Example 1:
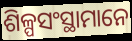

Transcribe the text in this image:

ଶିଳ୍ପସଂସ୍ଥାମାନେ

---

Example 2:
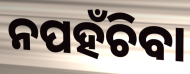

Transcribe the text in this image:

ନପହଁଚିବା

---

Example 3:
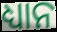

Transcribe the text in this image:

ଧ୍ୟାନ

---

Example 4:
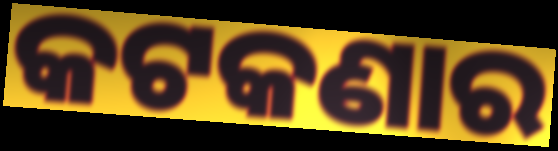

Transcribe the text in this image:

କଟକଣାର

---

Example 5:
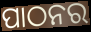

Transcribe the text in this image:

ପାଠନର